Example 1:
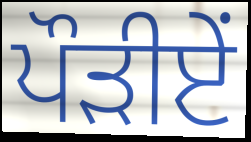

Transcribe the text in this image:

ਪੌੜੀਏਂ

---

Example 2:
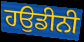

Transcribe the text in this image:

ਹਉਡੀਨੀ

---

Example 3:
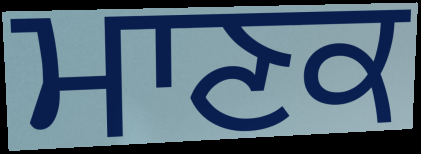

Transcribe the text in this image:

ਮਾਣਕ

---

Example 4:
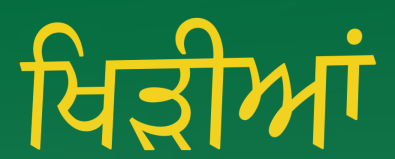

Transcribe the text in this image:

ਖਿੜੀਆਂ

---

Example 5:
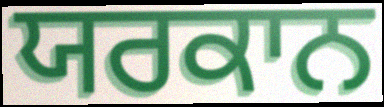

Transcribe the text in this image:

ਯਰਕਾਨ